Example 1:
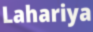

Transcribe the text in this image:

Lahariya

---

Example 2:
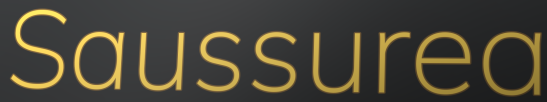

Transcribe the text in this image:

Saussurea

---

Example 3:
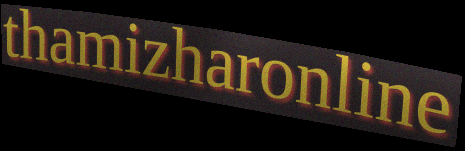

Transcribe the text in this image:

thamizharonline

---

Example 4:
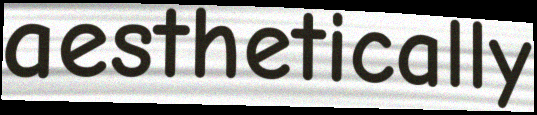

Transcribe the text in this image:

aesthetically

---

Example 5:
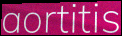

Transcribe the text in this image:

aortitis